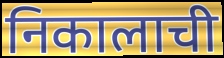
निकालाची